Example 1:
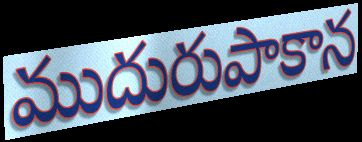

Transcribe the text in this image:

ముదురుపాకాన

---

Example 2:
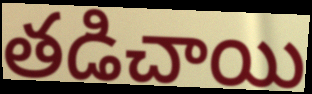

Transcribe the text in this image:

తడిచాయి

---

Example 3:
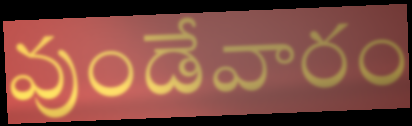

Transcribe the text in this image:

వుండేవారం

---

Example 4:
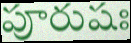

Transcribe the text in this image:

పూరుషః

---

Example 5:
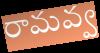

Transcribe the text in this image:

రామవ్వ